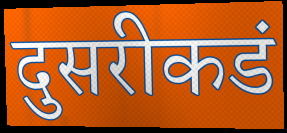
दुसरीकडं